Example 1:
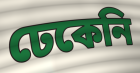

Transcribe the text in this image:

ঢেকেনি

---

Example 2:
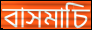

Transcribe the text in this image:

বাসমাচি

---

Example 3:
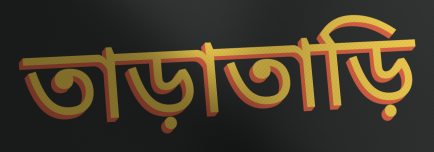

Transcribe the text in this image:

তাড়াতাড়ি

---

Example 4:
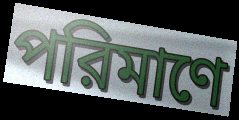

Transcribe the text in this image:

পরিমাণে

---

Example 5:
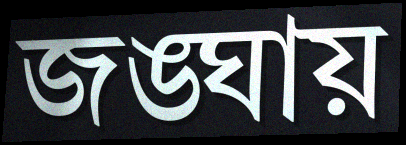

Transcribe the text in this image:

জঙ্ঘায়